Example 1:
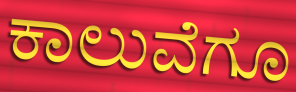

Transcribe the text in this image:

ಕಾಲುವೆಗೂ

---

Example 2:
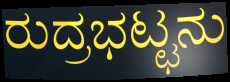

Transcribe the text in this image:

ರುದ್ರಭಟ್ಟನು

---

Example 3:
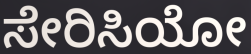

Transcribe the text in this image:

ಸೇರಿಸಿಯೋ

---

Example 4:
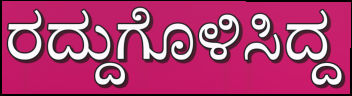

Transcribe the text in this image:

ರದ್ದುಗೊಳಿಸಿದ್ದ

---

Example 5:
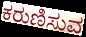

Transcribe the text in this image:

ಕರುಣಿಸುವ